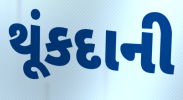
થૂંકદાની